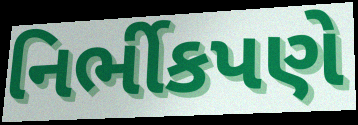
નિર્ભીકપણે